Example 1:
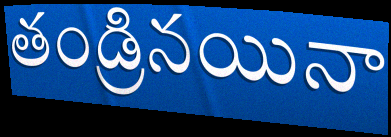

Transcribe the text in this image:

తండ్రినయినా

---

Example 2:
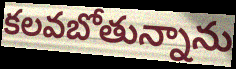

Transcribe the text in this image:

కలవబోతున్నాను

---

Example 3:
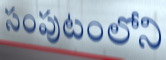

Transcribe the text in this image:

సంపుటంలోని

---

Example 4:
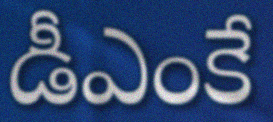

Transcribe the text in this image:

డీఎంకే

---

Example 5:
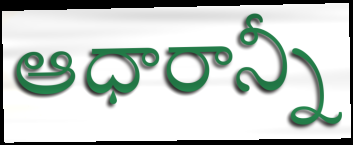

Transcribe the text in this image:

ఆధారాన్నీ